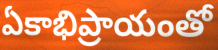
ఏకాభిప్రాయంతో